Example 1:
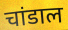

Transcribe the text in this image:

चांडाल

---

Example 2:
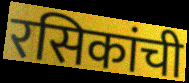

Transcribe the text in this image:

रसिकांची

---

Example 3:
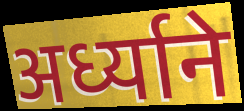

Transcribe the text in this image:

अर्ध्याने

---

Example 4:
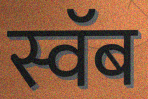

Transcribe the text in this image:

स्वॅब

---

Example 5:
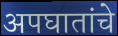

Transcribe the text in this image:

अपघातांचे